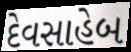
દેવસાહેબ